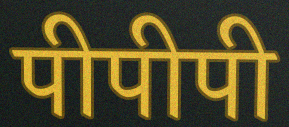
पीपीपी